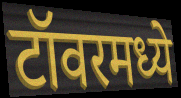
टॉवरमध्ये